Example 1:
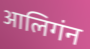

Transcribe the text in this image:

आलिगंन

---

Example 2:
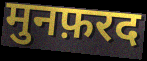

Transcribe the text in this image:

मुनफ़रद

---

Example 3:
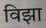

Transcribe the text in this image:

विझा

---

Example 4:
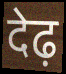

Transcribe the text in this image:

देढ़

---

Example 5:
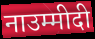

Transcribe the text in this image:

नाउम्मीदी